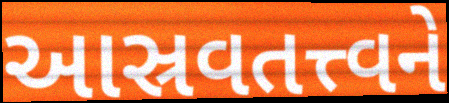
આસ્રવતત્ત્વને